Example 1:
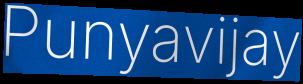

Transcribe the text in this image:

Punyavijay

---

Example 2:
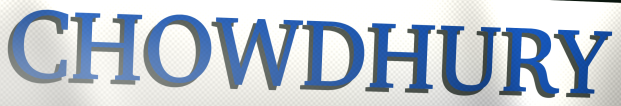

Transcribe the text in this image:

CHOWDHURY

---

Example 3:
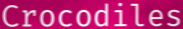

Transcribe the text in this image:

Crocodiles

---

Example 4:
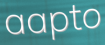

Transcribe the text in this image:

aapto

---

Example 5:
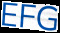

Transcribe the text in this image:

EFG